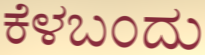
ಕೆಳಬಂದು